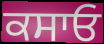
ਕਸਾਓ